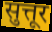
सुत्तूर